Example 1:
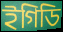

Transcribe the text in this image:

ইগিডি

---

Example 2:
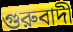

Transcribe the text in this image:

গুরুবাদী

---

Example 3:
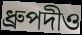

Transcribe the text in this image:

ধ্রুপদীও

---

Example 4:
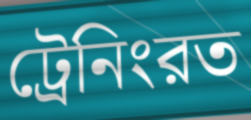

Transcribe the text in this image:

ট্রেনিংরত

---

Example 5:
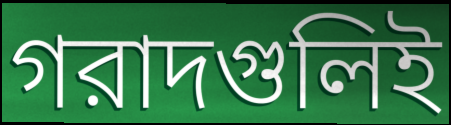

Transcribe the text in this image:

গরাদগুলিই